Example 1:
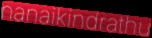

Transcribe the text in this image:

nanaikindrathu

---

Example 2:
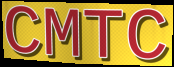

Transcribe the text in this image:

CMTC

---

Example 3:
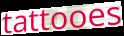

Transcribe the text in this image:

tattooes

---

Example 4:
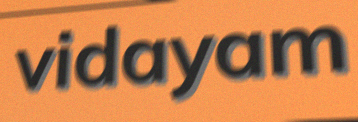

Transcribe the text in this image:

vidayam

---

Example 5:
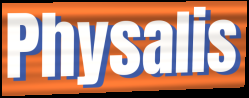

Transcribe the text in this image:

Physalis